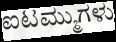
ಐಟಮ್ಮುಗಳು